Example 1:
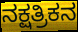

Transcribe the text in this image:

ನಕ್ಷತ್ರಿಕನ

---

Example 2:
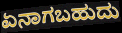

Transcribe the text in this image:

ಏನಾಗಬಹುದು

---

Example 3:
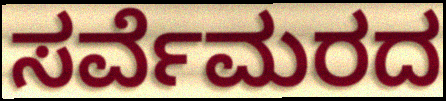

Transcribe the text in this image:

ಸರ್ವೆಮರದ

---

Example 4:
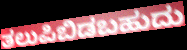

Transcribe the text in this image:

ತಲುಪಿಬಿಡಬಹುದು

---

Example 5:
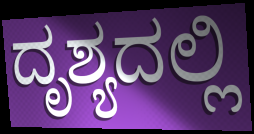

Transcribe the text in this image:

ದೃಶ್ಯದಲ್ಲಿ